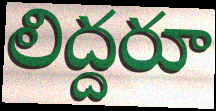
లిద్దరూ